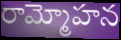
రామ్మోహన